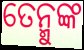
ତେନ୍ମୁଙ୍କ